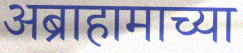
अब्राहामाच्या